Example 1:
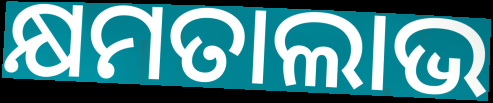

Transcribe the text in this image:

କ୍ଷମତାଲାଭ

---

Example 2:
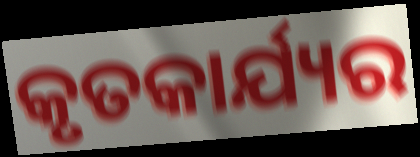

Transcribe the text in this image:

କୃତକାର୍ଯ୍ୟର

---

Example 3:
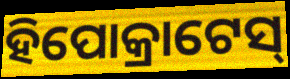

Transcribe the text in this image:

ହିପୋକ୍ରାଟେସ୍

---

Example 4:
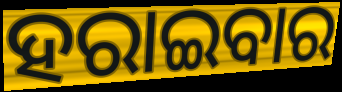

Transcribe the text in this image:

ହରାଇବାର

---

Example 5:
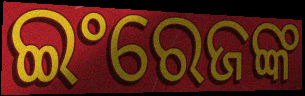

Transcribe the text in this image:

ଇଂରେଜଙ୍କ